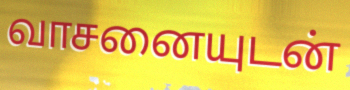
வாசனையுடன்